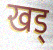
खड्